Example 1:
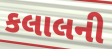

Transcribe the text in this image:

કલાલની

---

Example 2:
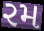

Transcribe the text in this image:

રમ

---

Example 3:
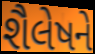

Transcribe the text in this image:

શૈલેષને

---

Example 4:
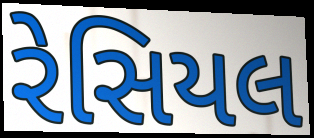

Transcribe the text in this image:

રેસિયલ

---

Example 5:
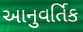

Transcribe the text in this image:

આનુવર્તિક